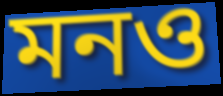
মনও